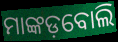
ମାଙ୍କଡ଼ବୋଲି